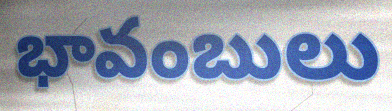
భావంబులు